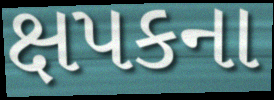
ક્ષપકના